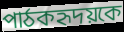
পাঠকহৃদয়কে